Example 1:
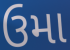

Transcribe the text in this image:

ઉમા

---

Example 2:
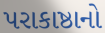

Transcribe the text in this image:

પરાકાષ્ઠાનો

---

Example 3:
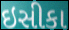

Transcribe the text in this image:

ઇસીકા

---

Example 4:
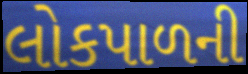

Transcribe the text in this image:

લોકપાળની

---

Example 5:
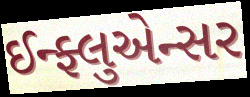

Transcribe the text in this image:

ઈન્ફ્લુએન્સર